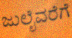
ಜುಲೈವರೆಗೆ